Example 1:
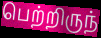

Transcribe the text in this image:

பெற்றிருந்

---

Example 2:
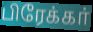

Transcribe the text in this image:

பிரேக்கர்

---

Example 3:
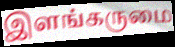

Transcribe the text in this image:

இளங்கருமை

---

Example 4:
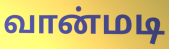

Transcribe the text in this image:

வான்மடி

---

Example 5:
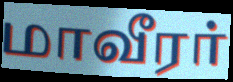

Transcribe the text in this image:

மாவீரர்